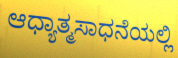
ಆಧ್ಯಾತ್ಮಸಾಧನೆಯಲ್ಲಿ